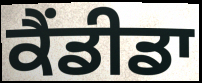
ਕੈਂਡੀਡਾ